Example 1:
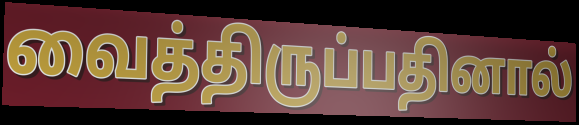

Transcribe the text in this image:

வைத்திருப்பதினால்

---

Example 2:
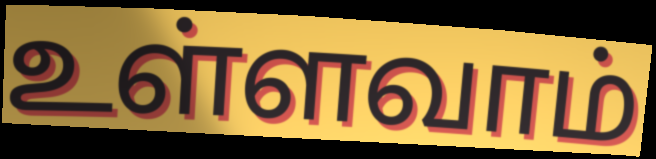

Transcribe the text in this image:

உள்ளவாம்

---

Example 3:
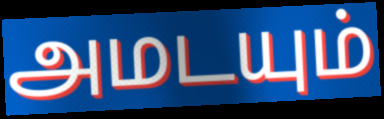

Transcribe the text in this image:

அமடயும்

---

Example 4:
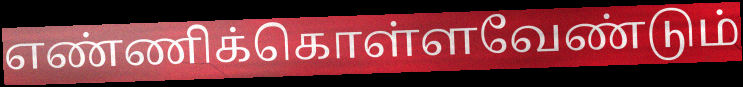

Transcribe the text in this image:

எண்ணிக்கொள்ளவேண்டும்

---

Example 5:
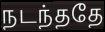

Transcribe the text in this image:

நடந்ததே